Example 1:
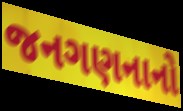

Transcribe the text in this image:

જનગણનાનો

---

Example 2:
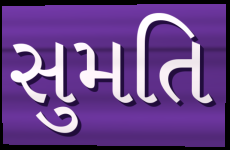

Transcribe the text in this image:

સુમતિ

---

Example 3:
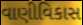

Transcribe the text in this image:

વાણીવિકાસ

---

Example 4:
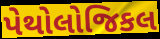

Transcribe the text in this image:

પેથોલોજિકલ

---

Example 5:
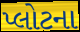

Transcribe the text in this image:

પ્લોટના